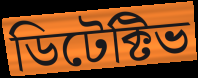
ডিটেক্টিভ